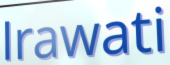
Irawati